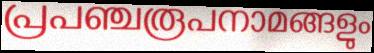
പ്രപഞ്ചരൂപനാമങ്ങളും